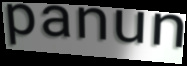
panun